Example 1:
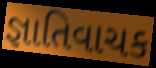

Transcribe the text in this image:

જ્ઞાતિવાચક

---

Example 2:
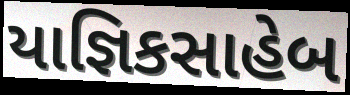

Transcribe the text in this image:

યાજ્ઞિકસાહેબ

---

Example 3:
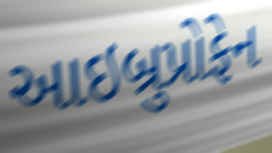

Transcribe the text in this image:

આઇબ્રુપ્રોફેન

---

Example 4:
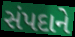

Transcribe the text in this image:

સંપદાને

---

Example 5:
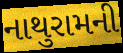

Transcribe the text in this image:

નાથુરામની